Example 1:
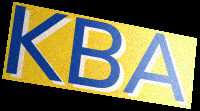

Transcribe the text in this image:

KBA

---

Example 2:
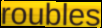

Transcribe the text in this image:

roubles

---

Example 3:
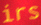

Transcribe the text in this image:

irs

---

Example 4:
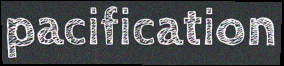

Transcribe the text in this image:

pacification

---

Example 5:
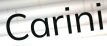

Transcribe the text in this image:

Carini